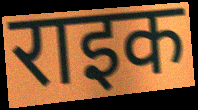
राइक